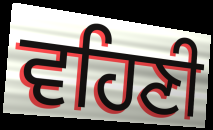
ਵਹਿਣੀ